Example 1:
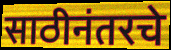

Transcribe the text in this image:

साठीनंतरचे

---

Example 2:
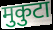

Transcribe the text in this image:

मुकुटा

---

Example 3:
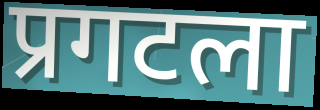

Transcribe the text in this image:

प्रगटला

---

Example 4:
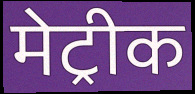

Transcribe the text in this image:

मेट्रीक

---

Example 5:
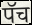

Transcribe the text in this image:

पॅच